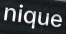
nique